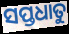
ସପ୍ତଧାତୁ